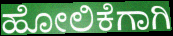
ಹೋಲಿಕೆಗಾಗಿ